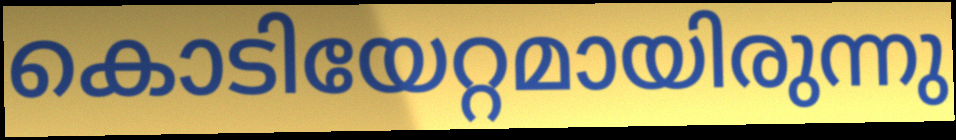
കൊടിയേറ്റമായിരുന്നു